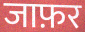
जाफ़र